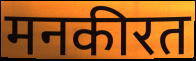
मनकीरत